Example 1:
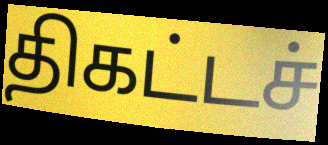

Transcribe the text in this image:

திகட்டச்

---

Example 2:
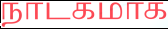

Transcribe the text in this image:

நாடகமாக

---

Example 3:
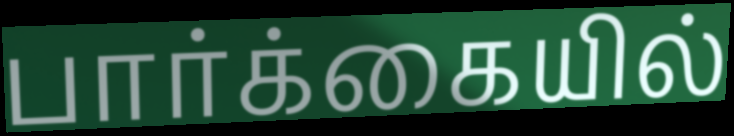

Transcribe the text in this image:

பார்க்கையில்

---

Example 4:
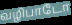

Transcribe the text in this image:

வழிபாடோ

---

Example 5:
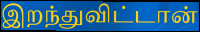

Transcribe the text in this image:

இறந்துவிட்டான்